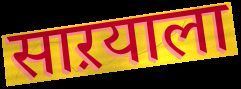
साऱयाला